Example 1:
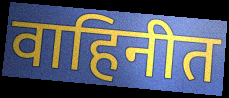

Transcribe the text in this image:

वाहिनीत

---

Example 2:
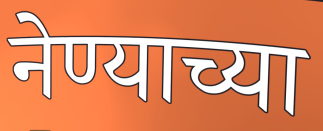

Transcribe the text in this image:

नेण्याच्या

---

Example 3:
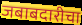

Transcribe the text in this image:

जबाबदारीचा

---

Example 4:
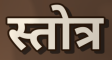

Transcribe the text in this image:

स्तोत्र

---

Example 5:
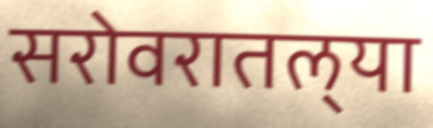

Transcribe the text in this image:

सरोवरातल्या